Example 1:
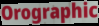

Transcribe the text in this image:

Orographic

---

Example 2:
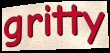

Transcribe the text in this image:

gritty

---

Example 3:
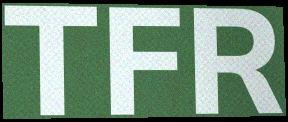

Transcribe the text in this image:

TFR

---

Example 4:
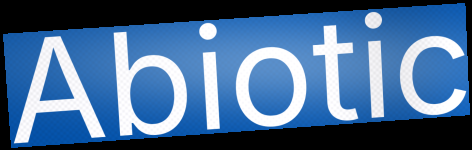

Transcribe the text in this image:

Abiotic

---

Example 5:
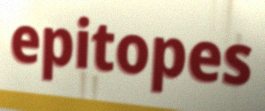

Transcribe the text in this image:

epitopes